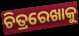
ଚିତ୍ରରେଖାକୁ